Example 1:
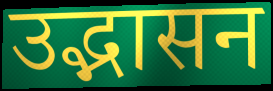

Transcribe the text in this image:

उद्भासन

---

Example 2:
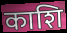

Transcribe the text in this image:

काशि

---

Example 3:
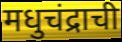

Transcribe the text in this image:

मधुचंद्राची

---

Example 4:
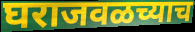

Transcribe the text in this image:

घराजवळच्याच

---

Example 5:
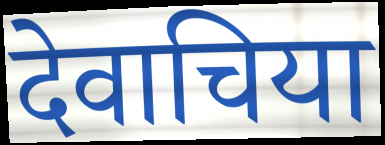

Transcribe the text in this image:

देवाचिया